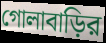
গোলাবাড়ির